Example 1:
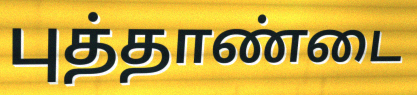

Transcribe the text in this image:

புத்தாண்டை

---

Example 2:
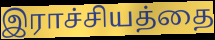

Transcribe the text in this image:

இராச்சியத்தை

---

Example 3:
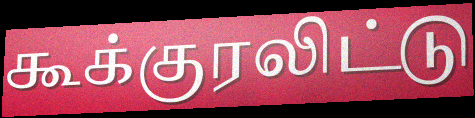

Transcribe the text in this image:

கூக்குரலிட்டு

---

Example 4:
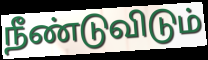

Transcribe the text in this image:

நீண்டுவிடும்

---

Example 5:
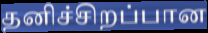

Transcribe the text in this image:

தனிச்சிறப்பான